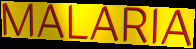
MALARIA